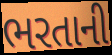
ભરતાની